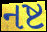
નષ્ટ